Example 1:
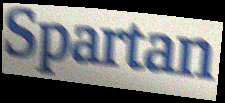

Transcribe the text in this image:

Spartan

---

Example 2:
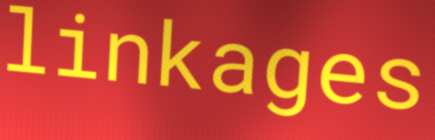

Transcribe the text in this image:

linkages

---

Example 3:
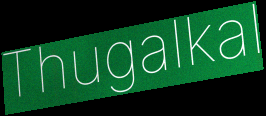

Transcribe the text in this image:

Thugalkal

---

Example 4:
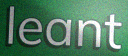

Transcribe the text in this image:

leant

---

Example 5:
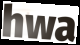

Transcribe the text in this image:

hwa